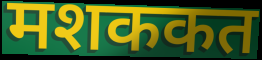
मशककत